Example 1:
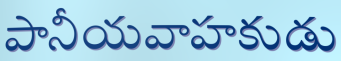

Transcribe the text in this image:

పానీయవాహకుడు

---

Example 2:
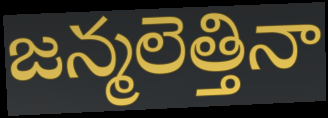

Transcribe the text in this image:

జన్మలెత్తినా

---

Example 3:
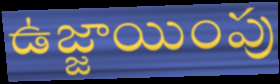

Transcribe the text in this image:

ఉజ్జాయింపు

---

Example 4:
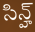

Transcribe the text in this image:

సిన్హ్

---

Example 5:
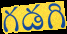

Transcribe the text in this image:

గడగి